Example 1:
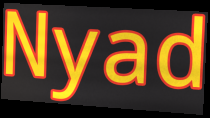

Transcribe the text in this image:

Nyad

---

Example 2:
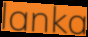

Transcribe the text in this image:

lanka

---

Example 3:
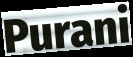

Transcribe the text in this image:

Purani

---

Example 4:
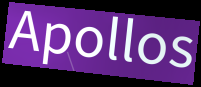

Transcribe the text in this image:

Apollos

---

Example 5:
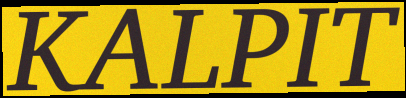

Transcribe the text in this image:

KALPIT